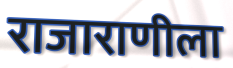
राजाराणीला